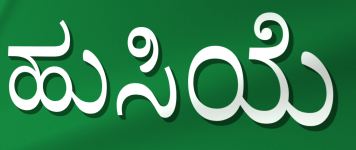
ಹುಸಿಯೆ